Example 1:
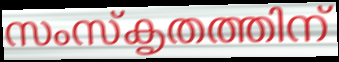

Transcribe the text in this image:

സംസ്‌കൃതത്തിന്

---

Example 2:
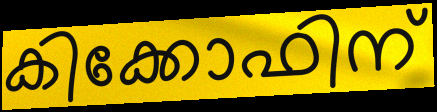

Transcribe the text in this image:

കിക്കോഫിന്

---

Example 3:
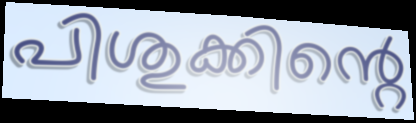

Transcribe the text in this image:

പിശുക്കിന്റെ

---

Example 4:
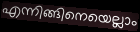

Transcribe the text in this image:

എന്നിങ്ങിനെയെല്ലാം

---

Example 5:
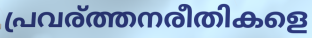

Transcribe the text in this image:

പ്രവര്ത്തനരീതികളെ